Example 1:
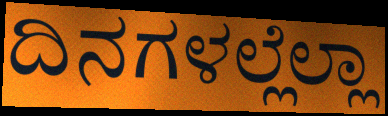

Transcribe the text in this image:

ದಿನಗಳಲ್ಲೆಲ್ಲಾ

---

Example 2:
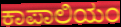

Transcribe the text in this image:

ಕಾಪಾಲಿಯಂ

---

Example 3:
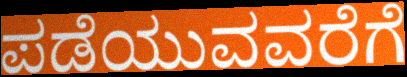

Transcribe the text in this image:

ಪಡೆಯುವವರೆಗೆ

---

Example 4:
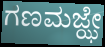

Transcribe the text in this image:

ಗಣಮಜ್ಝೇ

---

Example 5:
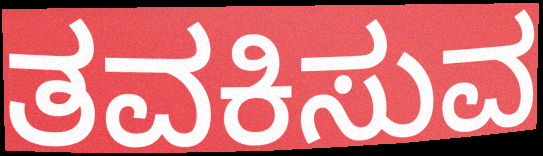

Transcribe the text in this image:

ತವಕಿಸುವ